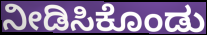
ನೀಡಿಸಿಕೊಂಡು